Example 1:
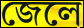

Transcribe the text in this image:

জেলে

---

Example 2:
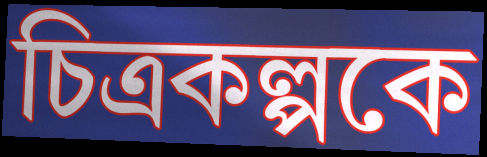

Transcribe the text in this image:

চিত্রকল্পকে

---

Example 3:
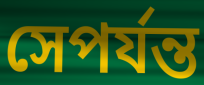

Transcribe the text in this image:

সেপর্যন্ত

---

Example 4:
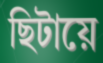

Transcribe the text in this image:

ছিটায়ে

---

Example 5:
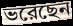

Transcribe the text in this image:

ভরেছেন